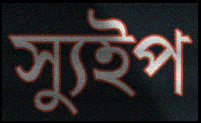
স্যুইপ